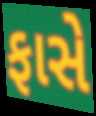
ફાસે